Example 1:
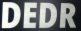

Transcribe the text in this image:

DEDR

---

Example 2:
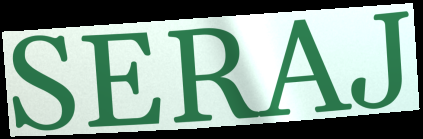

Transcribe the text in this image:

SERAJ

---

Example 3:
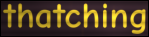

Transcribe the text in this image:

thatching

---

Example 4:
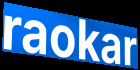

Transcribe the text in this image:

raokar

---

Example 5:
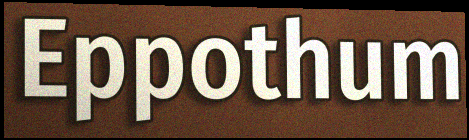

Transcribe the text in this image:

Eppothum